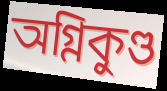
অগ্নিকুণ্ড